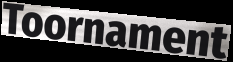
Toornament